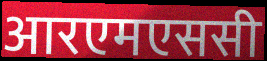
आरएमएससी